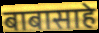
बाबासाहे